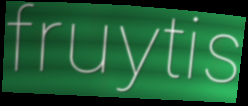
fruytis